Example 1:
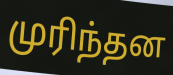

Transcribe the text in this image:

முரிந்தன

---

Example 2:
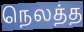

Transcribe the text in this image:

நெலத்த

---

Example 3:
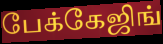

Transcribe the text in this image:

பேக்கேஜிங்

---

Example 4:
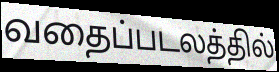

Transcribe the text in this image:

வதைப்படலத்தில்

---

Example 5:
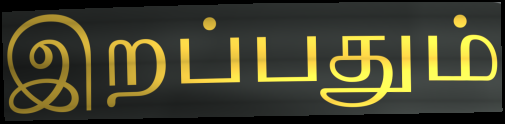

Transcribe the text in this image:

இறப்பதும்